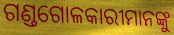
ଗଣ୍ଡଗୋଳକାରୀମାନଙ୍କୁ